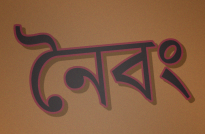
নৈবং